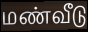
மண்வீடு